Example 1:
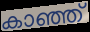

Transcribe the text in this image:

കാഞ്ഞ്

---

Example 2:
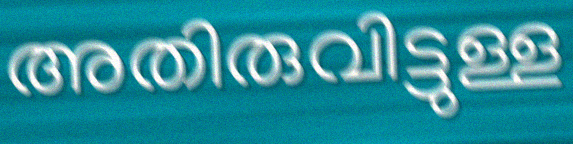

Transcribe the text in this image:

അതിരുവിട്ടുള്ള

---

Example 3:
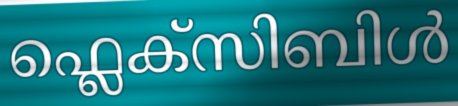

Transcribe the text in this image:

ഫ്ലെക്സിബിൾ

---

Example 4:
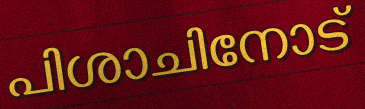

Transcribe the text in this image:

പിശാചിനോട്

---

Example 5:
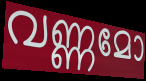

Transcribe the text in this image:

വണ്ണമോ